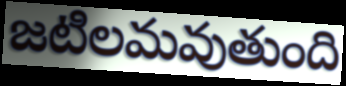
జటిలమవుతుంది